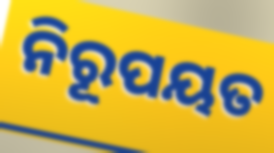
ନିରୂପୟତ